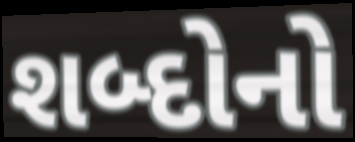
શબ્દોનો